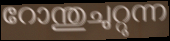
റോന്തുചുറ്റുന്ന